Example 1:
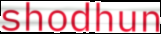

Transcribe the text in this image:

shodhun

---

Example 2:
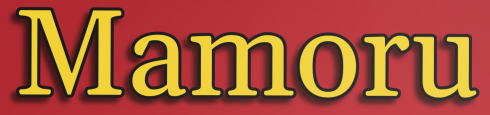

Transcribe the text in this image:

Mamoru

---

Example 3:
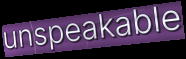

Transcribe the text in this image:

unspeakable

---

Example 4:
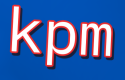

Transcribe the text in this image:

kpm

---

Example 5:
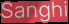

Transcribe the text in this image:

Sanghi